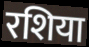
रशिया